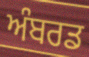
ਅੰਬਰਡ